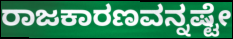
ರಾಜಕಾರಣವನ್ನಷ್ಟೇ